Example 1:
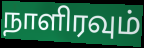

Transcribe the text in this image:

நாளிரவும்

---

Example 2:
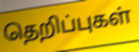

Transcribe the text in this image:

தெறிப்புகள்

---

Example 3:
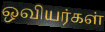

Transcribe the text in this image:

ஒவியர்கள்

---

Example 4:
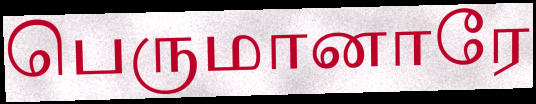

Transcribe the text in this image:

பெருமானாரே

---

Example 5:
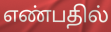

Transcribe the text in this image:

எண்பதில்